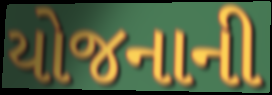
યોજનાની